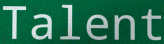
Talent